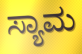
ಸ್ಯಾಮ